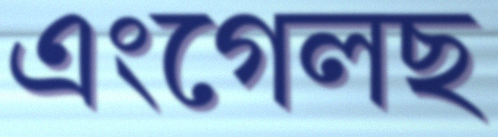
এংগেলছ